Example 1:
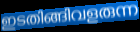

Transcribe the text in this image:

ഇടതിങ്ങിവളരുന്ന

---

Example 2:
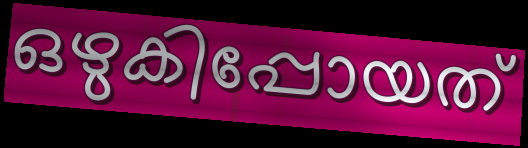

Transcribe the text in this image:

ഒഴുകിപ്പോയത്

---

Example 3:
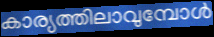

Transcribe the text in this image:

കാര്യത്തിലാവുമ്പോൾ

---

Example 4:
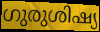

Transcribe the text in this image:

ഗുരുശിഷ്യ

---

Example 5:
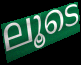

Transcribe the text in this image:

ലൂടെ